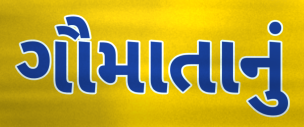
ગૌમાતાનું